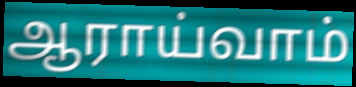
ஆராய்வாம்